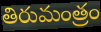
తిరుమంత్రం